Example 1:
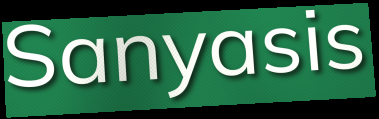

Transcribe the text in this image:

Sanyasis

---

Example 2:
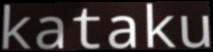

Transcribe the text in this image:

kataku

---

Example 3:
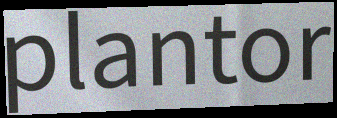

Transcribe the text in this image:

plantor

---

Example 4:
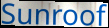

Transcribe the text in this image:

Sunroof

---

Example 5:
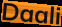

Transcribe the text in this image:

Daali